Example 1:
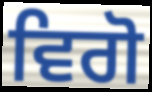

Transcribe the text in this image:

ਵਿਗੋ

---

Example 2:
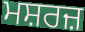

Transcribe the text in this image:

ਮਸ਼ਰਜ਼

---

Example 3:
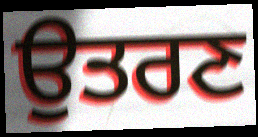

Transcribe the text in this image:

ਉਤਰਣ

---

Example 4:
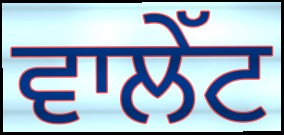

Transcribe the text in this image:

ਵਾਲੇੱਟ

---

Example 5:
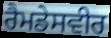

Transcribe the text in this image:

ਰੈਮਡੇਸਵੀਰ